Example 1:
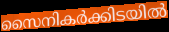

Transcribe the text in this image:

സൈനികർക്കിടയിൽ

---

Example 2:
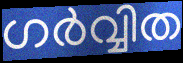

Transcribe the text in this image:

ഗർവ്വിത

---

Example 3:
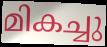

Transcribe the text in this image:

മികച്ചു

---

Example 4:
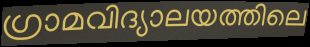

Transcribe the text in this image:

ഗ്രാമവിദ്യാലയത്തിലെ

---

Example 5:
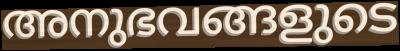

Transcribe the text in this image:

അനുഭവങ്ങളുടെ